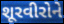
શૂરવીરોને